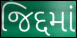
જિદ્દમાં